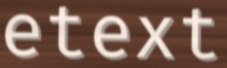
etext